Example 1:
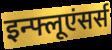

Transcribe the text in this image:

इन्फ्लूएंसर्स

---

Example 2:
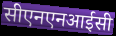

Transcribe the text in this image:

सीएनएनआईसी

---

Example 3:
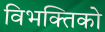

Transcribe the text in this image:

विभक्तिको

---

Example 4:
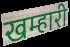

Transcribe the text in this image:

खम्हारी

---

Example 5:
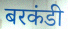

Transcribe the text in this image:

बरकंडी